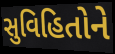
સુવિહિતોને